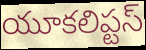
యూకలిప్టస్